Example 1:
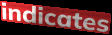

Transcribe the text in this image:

indicates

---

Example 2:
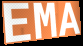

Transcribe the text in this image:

EMA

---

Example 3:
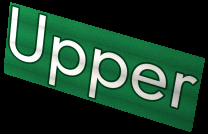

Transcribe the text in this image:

Upper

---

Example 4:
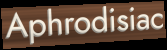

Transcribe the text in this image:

Aphrodisiac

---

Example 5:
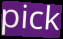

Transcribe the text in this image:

pick